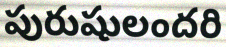
పురుషులందరి